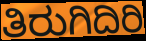
ತಿರುಗಿದಿರಿ